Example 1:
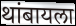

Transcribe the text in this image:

थांबायला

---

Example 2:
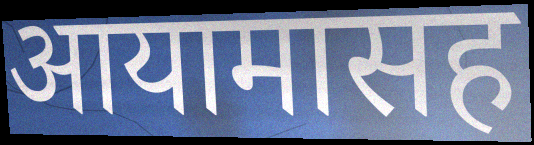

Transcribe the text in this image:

आयामासह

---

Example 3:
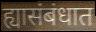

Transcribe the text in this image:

ह्यासंबंधात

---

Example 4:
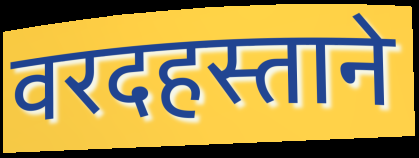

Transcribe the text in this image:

वरदहस्ताने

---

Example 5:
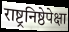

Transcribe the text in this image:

राष्ट्रनिष्ठेपेक्षा